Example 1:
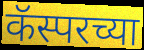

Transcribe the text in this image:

कॅस्परच्या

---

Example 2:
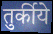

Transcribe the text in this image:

तुर्कीये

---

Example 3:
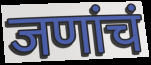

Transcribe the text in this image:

जणांचं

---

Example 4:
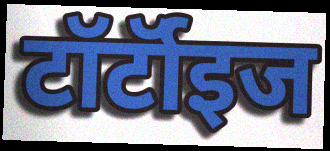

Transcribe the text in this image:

टॉर्टॉइज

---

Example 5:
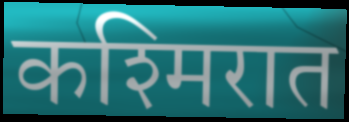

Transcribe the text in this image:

कश्मिरात